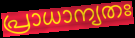
പ്രാധാന്യതഃ